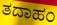
ತದಾಹಂ